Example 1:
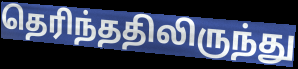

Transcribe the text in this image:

தெரிந்ததிலிருந்து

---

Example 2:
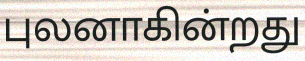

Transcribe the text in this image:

புலனாகின்றது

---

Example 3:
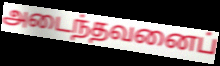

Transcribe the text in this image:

அடைந்தவனைப்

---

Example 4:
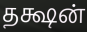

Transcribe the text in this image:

தக்ஷன்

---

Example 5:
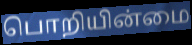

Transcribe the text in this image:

பொறியின்மை